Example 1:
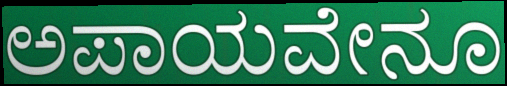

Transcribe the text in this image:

ಅಪಾಯವೇನೂ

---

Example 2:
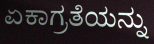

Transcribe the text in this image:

ಏಕಾಗ್ರತೆಯನ್ನು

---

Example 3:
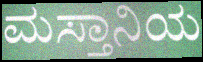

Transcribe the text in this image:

ಮಸ್ತಾನಿಯ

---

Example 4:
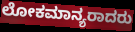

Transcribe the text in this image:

ಲೋಕಮಾನ್ಯರಾದರು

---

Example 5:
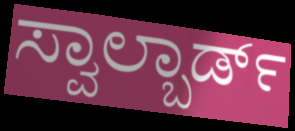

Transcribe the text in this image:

ಸ್ವಾಲ್ಬಾರ್ಡ್